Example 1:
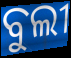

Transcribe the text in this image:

ବୁଲୀ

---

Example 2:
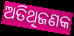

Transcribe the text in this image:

ଅତିଥିଜଣକ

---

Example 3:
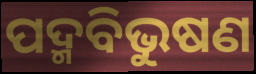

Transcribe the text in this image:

ପଦ୍ମବିଭୁଷଣ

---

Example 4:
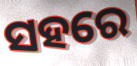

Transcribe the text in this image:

ସହରେ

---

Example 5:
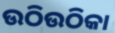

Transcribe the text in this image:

ଉଠିଉଠିକା